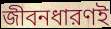
জীবনধারণই